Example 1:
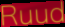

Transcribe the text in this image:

Ruud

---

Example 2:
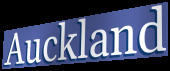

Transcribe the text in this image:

Auckland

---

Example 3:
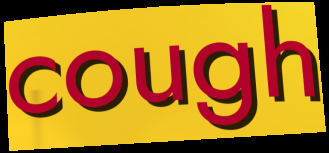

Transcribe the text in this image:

cough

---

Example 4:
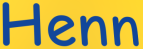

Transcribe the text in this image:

Henn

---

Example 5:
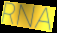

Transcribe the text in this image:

RNA